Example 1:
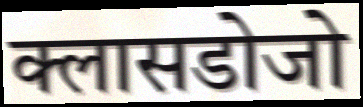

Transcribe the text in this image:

क्लासडोजो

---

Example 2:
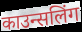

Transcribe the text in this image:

काउन्सलिंग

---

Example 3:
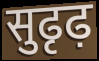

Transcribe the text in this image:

सुढृढ़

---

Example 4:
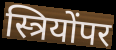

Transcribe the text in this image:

स्त्रियोंपर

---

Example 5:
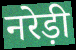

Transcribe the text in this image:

नरेड़ी